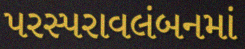
પરસ્પરાવલંબનમાં